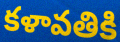
కళావతికి